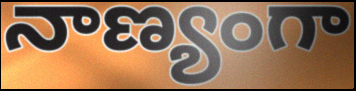
నాణ్యంగా